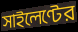
সাইলেণ্টের